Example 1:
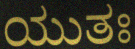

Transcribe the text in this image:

ಯುತಃ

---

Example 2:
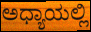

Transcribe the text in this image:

ಅಧ್ಯಾಯಲ್ಲಿ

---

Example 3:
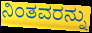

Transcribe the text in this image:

ನಿಂತವರನ್ನು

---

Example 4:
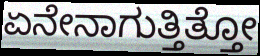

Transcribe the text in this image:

ಏನೇನಾಗುತ್ತಿತ್ತೋ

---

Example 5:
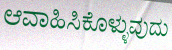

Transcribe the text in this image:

ಆವಾಹಿಸಿಕೊಳ್ಳುವುದು